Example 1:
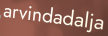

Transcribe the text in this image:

arvindadalja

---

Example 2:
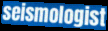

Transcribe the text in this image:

seismologist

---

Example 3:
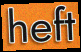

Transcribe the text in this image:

heft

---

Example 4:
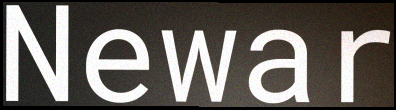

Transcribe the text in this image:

Newar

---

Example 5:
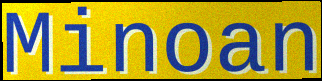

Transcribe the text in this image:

Minoan